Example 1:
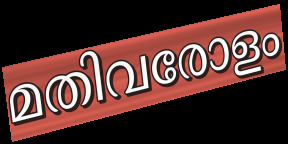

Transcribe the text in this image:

മതിവരോളം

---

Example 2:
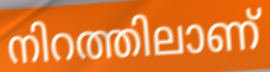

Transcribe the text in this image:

നിറത്തിലാണ്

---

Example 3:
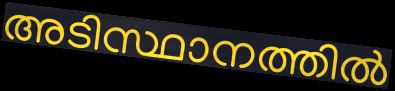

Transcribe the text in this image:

അടിസ്ഥാനത്തിൽ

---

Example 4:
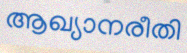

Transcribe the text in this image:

ആഖ്യാനരീതി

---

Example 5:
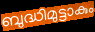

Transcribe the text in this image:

ബുദ്ധിമുട്ടാകും